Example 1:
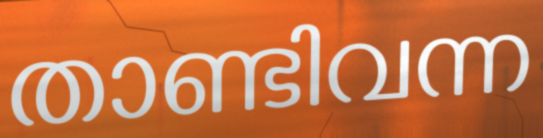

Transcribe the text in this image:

താണ്ടിവന്ന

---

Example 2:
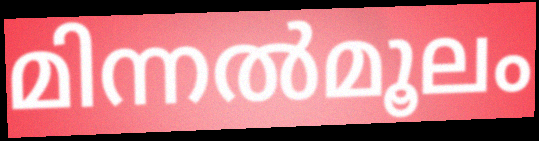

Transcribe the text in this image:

മിന്നൽമൂലം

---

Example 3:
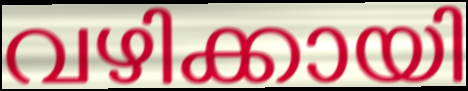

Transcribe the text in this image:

വഴിക്കായി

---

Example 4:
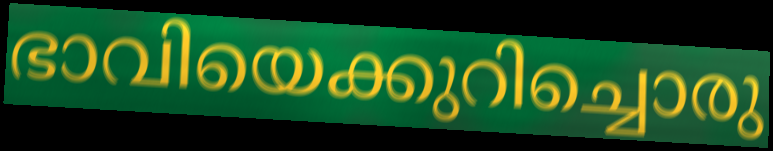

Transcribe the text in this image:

ഭാവിയെക്കുറിച്ചൊരു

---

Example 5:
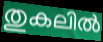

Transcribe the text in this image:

തുകലിൽ